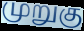
முறுகு